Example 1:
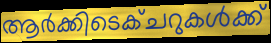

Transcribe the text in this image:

ആർക്കിടെക്ചറുകൾക്ക്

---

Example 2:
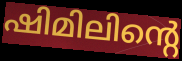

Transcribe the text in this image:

ഷിമിലിന്റെ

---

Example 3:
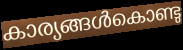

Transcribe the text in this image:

കാര്യങ്ങൾകൊണ്ടു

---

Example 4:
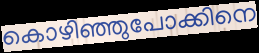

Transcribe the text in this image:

കൊഴിഞ്ഞുപോക്കിനെ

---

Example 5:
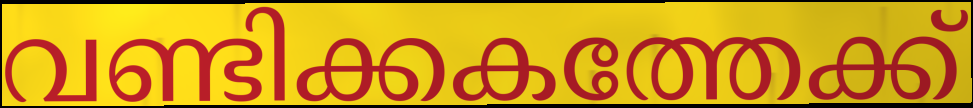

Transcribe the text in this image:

വണ്ടിക്കകത്തേക്ക്